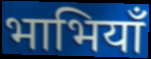
भाभियाँ